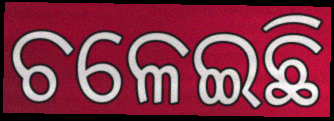
ଚଳେଇଛି